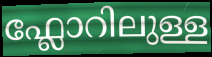
ഫ്ലോറിലുള്ള